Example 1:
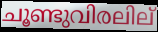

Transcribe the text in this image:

ചൂണ്ടുവിരലില്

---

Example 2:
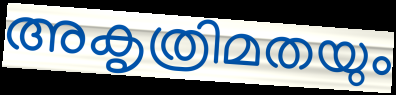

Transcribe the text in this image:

അകൃത്രിമതയും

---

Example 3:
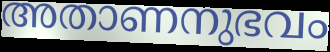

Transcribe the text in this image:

അതാണനുഭവം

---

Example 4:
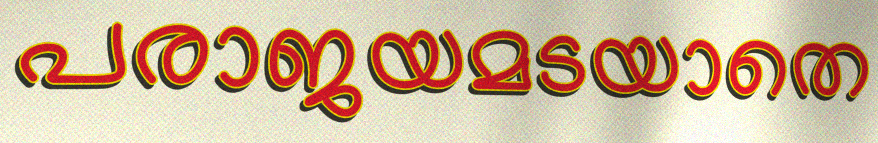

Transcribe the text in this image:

പരാജയമടയാതെ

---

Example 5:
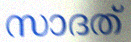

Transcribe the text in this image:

സാദത്